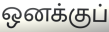
ஒனக்குப்